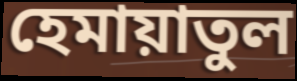
হেমায়াতুল